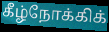
கீழ்நோக்கிக்